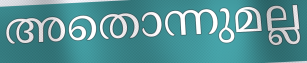
അതൊന്നുമല്ല